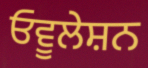
ਓਵੂਲੇਸ਼ਨ